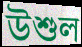
উশুল